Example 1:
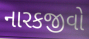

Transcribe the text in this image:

નારકજીવો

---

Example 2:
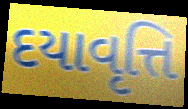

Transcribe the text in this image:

દયાવૃત્તિ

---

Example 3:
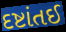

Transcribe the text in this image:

દષ્ટાંતઈ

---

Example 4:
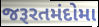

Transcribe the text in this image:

જરૂરતમંદોમા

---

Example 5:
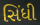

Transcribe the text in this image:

સિંધી